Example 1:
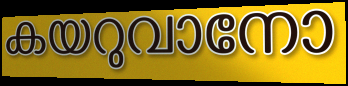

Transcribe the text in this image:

കയറുവാനോ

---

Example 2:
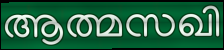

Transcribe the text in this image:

ആത്മസഖി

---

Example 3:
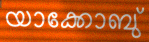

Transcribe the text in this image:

യാക്കോബു്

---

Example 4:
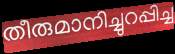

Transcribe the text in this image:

തീരുമാനിച്ചുറപ്പിച്ച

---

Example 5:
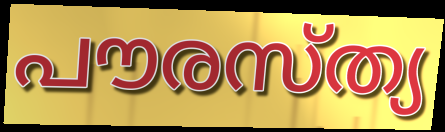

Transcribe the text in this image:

പൗരസ്ത്യ